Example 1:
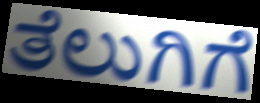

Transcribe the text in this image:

ತೆಲುಗಿಗೆ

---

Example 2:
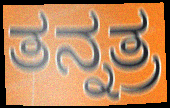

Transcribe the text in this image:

ತನ್ನತ್ರ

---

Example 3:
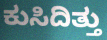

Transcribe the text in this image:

ಕುಸಿದಿತ್ತು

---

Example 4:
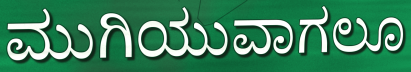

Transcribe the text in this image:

ಮುಗಿಯುವಾಗಲೂ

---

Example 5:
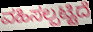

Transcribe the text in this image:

ವಹಿಸಲ್ಪಟ್ಟಿದೆ